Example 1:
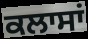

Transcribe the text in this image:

ਕਲਾਸਾਂ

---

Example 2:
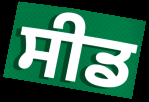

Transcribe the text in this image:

ਸੀਡ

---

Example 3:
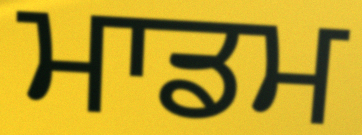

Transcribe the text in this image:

ਮਾਡਮ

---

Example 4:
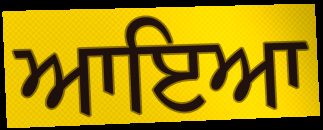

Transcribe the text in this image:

ਆਇਆ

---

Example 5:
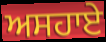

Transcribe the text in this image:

ਅਸਹਾਏ